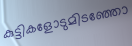
കുട്ടികളോടുമിടഞ്ഞോ